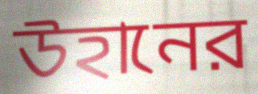
উহানের